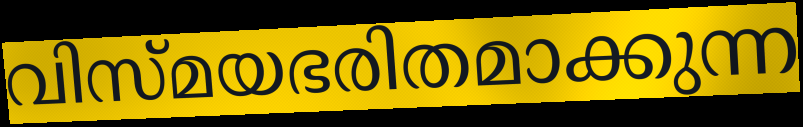
വിസ്മയഭരിതമാക്കുന്ന